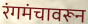
रंगमंचावरून